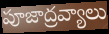
పూజాద్రవ్యాలు